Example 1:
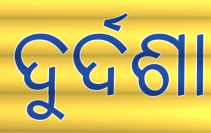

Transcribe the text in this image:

ଦୁର୍ଦଶା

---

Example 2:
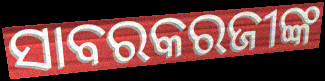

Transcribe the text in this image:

ସାବରକରଜୀଙ୍କ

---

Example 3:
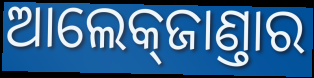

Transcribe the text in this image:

ଆଲେକ୍‌ଜାଣ୍ତାର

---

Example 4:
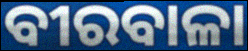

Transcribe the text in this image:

ବୀରବାଳା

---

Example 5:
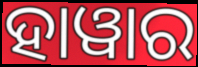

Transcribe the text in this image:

ହାୱାର